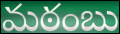
మఠంబు